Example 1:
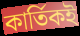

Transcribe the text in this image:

কার্তিকই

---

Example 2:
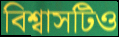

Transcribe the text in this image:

বিশ্বাসটিও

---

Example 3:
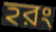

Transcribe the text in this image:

হরং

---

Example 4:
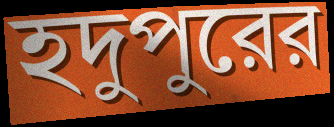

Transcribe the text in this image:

হদুপুরের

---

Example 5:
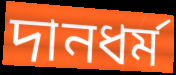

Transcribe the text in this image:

দানধর্ম